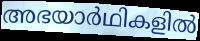
അഭയാർഥികളിൽ